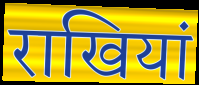
राखियां